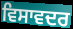
ਵਿਸਾਵਦਰ